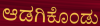
ಆಡಗಿಕೊಂಡು